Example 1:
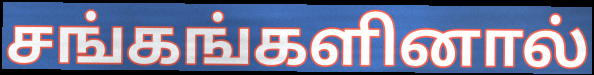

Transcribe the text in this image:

சங்கங்களினால்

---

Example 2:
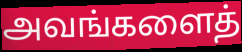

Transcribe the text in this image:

அவங்களைத்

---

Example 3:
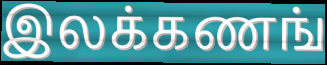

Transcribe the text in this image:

இலக்கணங்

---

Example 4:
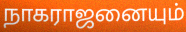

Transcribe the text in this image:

நாகராஜனையும்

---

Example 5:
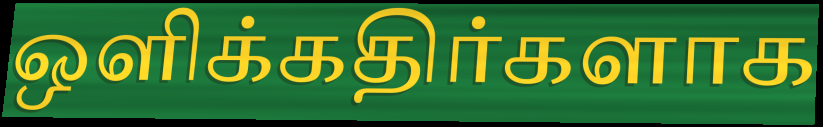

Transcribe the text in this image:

ஒளிக்கதிர்களாக